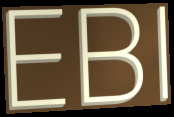
EBI